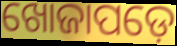
ଖୋଜାପଡ଼େ